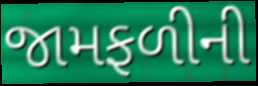
જામફળીની